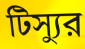
টিস্যুর